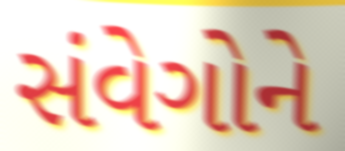
સંવેગોને